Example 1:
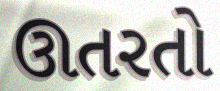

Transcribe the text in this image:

ઊતરતો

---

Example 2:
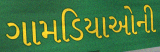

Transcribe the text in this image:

ગામડિયાઓની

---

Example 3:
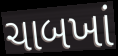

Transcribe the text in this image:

ચાબખાં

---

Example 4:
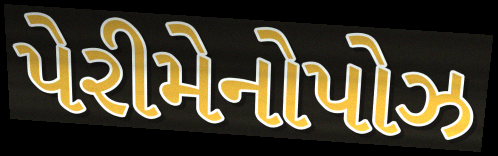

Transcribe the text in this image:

પેરીમેનોપોઝ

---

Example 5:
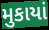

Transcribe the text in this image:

મુકાયાં